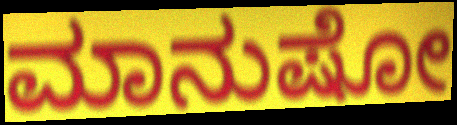
ಮಾನುಷೋ